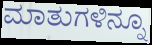
ಮಾತುಗಳಿನ್ನೂ